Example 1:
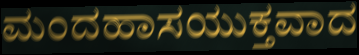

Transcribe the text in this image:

ಮಂದಹಾಸಯುಕ್ತವಾದ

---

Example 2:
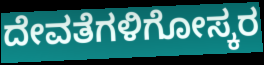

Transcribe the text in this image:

ದೇವತೆಗಳಿಗೋಸ್ಕರ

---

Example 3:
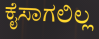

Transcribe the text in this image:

ಕೈಸಾಗಲಿಲ್ಲ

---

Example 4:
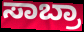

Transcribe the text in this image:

ಸಾಬ್ರಾ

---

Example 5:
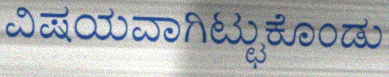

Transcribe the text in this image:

ವಿಷಯವಾಗಿಟ್ಟುಕೊಂಡು